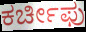
ಕರ್ಚೀಫು